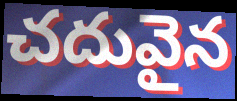
చదువైన